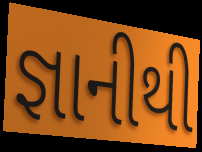
જ્ઞાનીથી